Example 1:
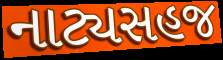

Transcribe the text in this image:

નાટ્યસહજ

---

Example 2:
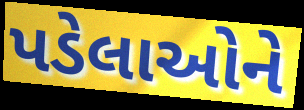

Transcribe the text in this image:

પડેલાઓને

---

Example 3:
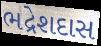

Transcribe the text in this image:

ભદ્રેશદાસ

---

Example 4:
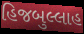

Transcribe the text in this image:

હિજબુલ્લાહ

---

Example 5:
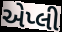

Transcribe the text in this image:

એપ્લી